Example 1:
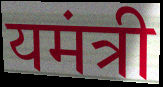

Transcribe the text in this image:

यमंत्री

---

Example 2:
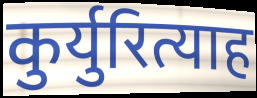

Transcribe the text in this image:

कुर्युरित्याह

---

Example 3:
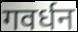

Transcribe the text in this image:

गवर्धन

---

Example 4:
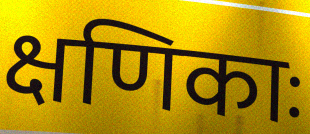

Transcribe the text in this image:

क्षणिकाः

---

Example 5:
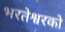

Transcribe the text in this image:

भरतेश्वरको